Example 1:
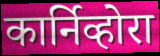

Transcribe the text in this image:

कार्निव्होरा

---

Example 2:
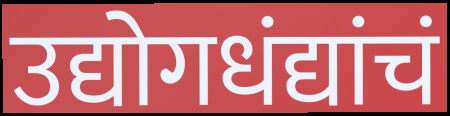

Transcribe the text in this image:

उद्योगधंद्यांचं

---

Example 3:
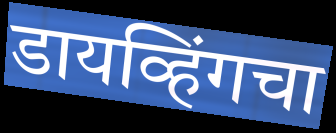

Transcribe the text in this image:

डायव्हिंगचा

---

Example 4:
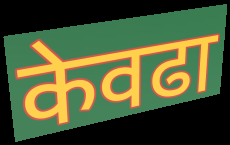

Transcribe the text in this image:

केवढा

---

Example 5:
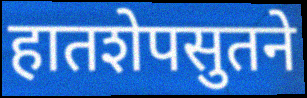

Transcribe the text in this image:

हातशेपसुतने